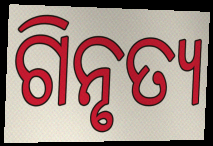
ଗିନୃତ୍ୟ